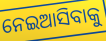
ନେଇଆସିବାକୁ